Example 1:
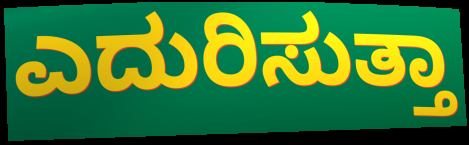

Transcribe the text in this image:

ಎದುರಿಸುತ್ತಾ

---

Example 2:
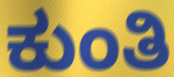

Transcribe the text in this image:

ಕುಂತಿ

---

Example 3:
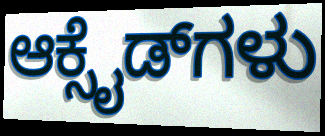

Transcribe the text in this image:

ಆಕ್ಸೈಡ್‌ಗಳು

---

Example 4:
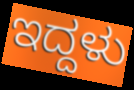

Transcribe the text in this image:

ಇದ್ದಳು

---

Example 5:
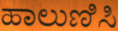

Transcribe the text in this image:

ಹಾಲುಣಿಸಿ